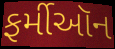
ફર્મીઑન